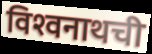
विश्वनाथची